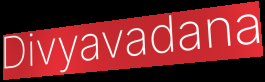
Divyavadana